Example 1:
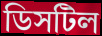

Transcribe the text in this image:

ডিসটিল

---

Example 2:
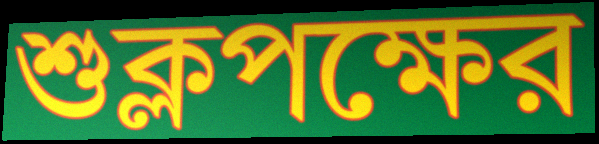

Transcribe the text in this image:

শুক্লপক্ষের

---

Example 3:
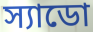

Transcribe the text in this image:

স্যাডো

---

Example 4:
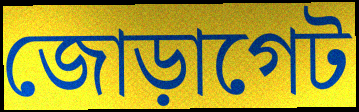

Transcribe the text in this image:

জোড়াগেট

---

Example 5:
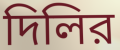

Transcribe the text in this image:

দিলির